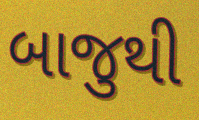
બાજુથી